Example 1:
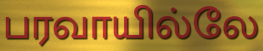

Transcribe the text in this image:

பரவாயில்லே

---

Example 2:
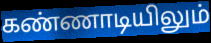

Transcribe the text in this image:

கண்ணாடியிலும்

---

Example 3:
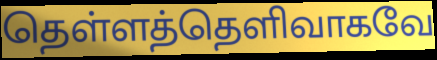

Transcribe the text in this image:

தெள்ளத்தெளிவாகவே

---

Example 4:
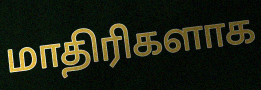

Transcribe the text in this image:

மாதிரிகளாக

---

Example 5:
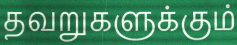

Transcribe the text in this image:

தவறுகளுக்கும்